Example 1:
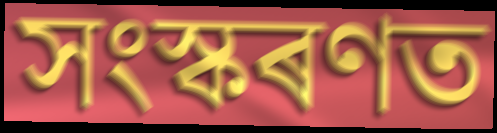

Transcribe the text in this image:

সংস্কৰণত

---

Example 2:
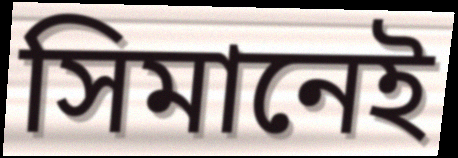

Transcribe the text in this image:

সিমানেই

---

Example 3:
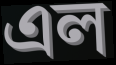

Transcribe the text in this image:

এল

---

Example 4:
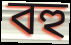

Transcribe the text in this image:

বহু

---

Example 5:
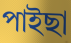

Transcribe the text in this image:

পাইছা